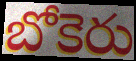
బోకెరు